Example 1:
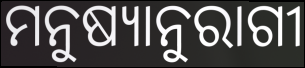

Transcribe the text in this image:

ମନୁଷ୍ୟାନୁରାଗୀ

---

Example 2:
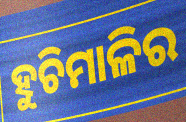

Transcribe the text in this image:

ହୁଚିମାଳିର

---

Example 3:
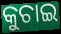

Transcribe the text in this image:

କୁଚାଇ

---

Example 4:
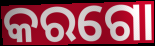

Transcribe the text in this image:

କରଗୋ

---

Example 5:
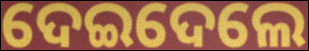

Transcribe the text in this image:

ଦେଇଦେଲେ